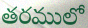
తరములో